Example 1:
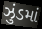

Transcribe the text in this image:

ઝુંડમાં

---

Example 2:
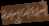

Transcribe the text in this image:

અનુબંધને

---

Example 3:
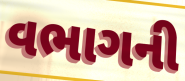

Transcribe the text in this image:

વભાગની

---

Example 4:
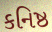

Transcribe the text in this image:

કનિષ્ઠ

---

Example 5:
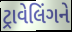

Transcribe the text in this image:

ટ્રાવેલિંગને